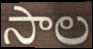
సాల